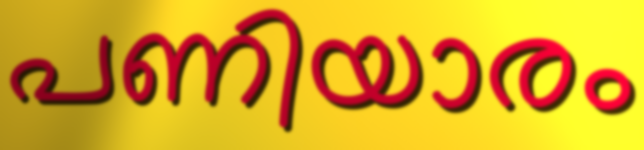
പണിയാരം